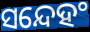
ସନ୍ଦେହଂ